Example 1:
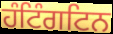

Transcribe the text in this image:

ਹੰਟਿੰਗਟਿਨ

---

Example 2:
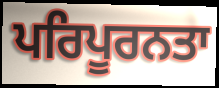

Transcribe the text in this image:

ਪਰਿਪੂਰਨਤਾ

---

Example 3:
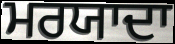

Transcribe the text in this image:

ਮਰਯਾਦਾ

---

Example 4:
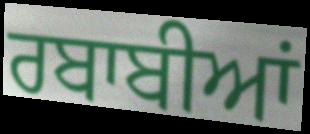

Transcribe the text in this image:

ਰਬਾਬੀਆਂ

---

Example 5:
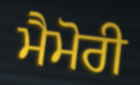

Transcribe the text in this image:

ਮੈਮੋਰੀ